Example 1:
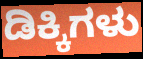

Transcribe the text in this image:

ಡಿಕ್ಕಿಗಳು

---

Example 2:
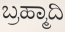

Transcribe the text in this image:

ಬ್ರಹ್ಮಾದಿ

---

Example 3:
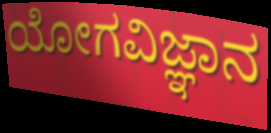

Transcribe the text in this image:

ಯೋಗವಿಜ್ಞಾನ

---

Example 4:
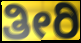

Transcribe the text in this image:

ತೀರಿ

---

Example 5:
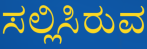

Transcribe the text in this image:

ಸಲ್ಲಿಸಿರುವ